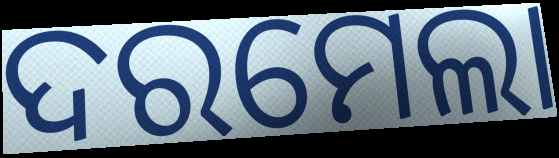
ଦରମେଲା